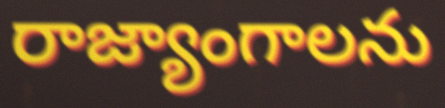
రాజ్యాంగాలను